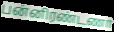
பன்னிரண்டணா